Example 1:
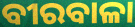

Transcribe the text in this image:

ବୀରବାଳା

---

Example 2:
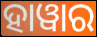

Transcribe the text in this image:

ହାୱାର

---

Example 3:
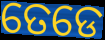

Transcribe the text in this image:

ତେଡେ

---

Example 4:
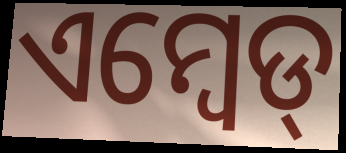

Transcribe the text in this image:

ଏମ୍ବେଡ୍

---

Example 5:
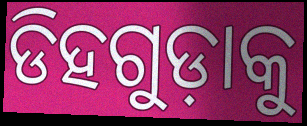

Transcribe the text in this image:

ଡିହଗୁଡ଼ାକୁ